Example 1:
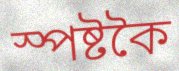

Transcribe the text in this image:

স্পষ্টকৈ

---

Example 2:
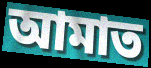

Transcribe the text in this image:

আমাত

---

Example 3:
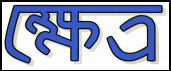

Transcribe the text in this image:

ক্ষেত্ৰ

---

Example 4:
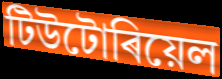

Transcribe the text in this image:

টিউটোৰিয়েল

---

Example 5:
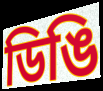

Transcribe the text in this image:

ডিঙি